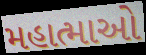
મહાત્માઓ